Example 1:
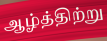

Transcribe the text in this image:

ஆழ்த்திற்று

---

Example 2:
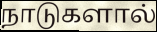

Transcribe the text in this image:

நாடுகளால்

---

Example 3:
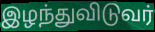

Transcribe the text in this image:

இழந்துவிடுவர்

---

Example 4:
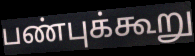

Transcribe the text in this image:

பண்புக்கூறு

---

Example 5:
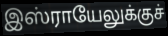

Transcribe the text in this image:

இஸ்ராயேலுக்குச்